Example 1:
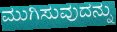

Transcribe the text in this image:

ಮುಗಿಸುವುದನ್ನು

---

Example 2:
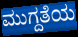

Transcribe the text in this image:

ಮುಗ್ದತೆಯ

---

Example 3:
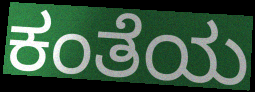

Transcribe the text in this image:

ಕಂತೆಯ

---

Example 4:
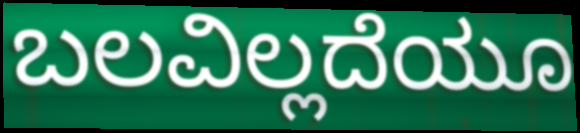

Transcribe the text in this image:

ಬಲವಿಲ್ಲದೆಯೂ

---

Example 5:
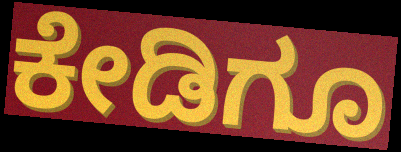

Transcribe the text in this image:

ಕೇಡಿಗೂ